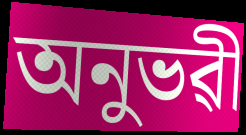
অনুভৱী